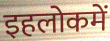
इहलोकमें